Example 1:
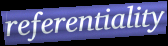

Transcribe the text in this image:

referentiality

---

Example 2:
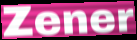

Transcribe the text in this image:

Zener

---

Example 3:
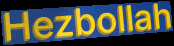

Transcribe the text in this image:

Hezbollah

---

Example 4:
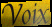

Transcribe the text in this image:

Voix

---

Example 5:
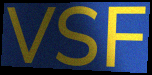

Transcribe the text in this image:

VSF